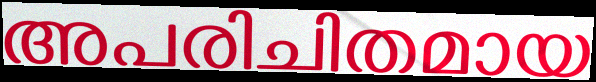
അപരിചിതമായ